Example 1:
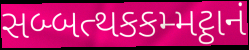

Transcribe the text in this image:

સબ્બત્થકકમ્મટ્ઠાનં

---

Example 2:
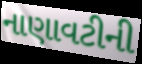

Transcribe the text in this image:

નાણાવટીની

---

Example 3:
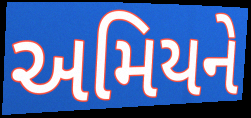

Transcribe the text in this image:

અમિયને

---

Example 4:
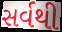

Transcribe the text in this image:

સર્વથી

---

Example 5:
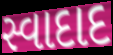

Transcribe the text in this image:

સ્વાદાદ